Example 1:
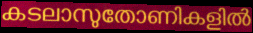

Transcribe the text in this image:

കടലാസുതോണികളിൽ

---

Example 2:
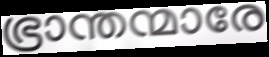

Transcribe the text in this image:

ഭ്രാന്തന്മാരേ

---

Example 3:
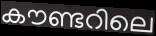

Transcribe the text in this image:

കൗണ്ടറിലെ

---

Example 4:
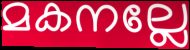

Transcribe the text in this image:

മകനല്ലേ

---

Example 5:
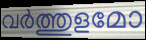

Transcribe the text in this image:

വർത്തുളമോ